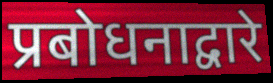
प्रबोधनाद्वारे